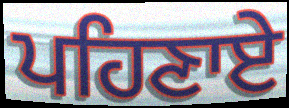
ਪਹਿਣਾਏ